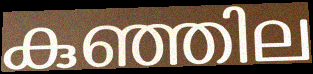
കുഞ്ഞില